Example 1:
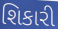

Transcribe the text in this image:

શિકારી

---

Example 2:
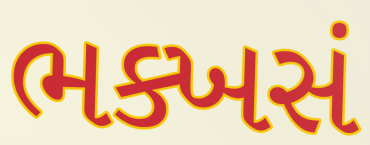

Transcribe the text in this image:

ભક્ખસં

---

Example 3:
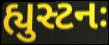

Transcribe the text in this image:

હ્યુસ્ટનઃ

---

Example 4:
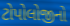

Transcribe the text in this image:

ટોપોલોજીનો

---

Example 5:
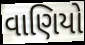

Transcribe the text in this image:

વાણિયો